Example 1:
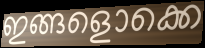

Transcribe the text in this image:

ഇങ്ങളൊക്കെ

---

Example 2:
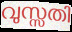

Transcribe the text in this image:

വുസ്സതി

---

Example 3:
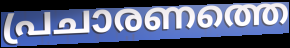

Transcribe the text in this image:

പ്രചാരണത്തെ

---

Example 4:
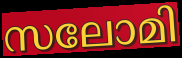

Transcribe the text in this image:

സലോമി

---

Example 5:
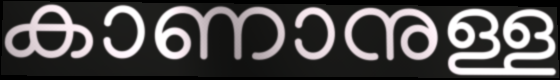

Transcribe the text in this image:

കാണാനുള്ള